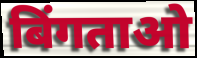
बिंगताओ